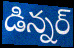
డిన్నర్